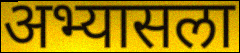
अभ्यासला